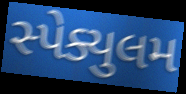
સ્પેક્યુલમ